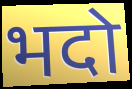
भदो